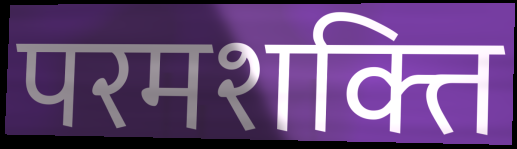
परमशक्ति